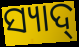
ସ୍ୟାଦ୍